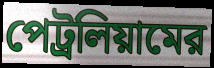
পেট্রলিয়ামের